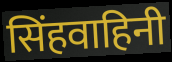
सिंहवाहिनी